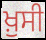
ਖ਼ੁਸੀ